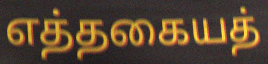
எத்தகையத்